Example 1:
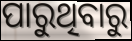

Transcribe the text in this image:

ପାରୁଥିବାରୁ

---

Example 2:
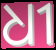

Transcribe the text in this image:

ଧୀ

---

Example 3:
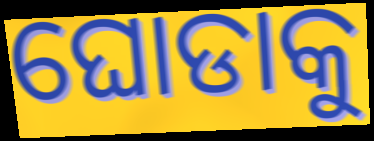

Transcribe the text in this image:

ଘୋଡାକୁ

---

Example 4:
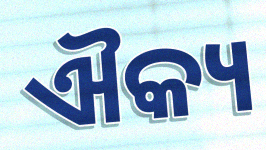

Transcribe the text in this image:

ଐକ୍ୟ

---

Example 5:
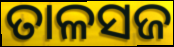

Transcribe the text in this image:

ତାଳସଜ